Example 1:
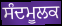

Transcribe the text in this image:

ਸੰਦਮੂਲਕ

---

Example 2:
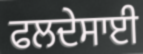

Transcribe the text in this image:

ਫਲਦੇਸਾਈ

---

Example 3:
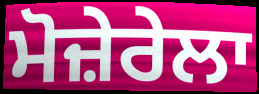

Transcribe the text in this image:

ਮੋਜ਼ੇਰੇਲਾ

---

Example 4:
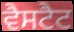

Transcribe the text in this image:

ਵੈਸਟੈਟ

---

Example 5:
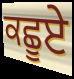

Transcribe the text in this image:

ਕਛੂਏ